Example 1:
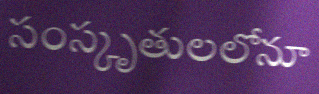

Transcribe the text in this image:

సంస్కృతులలోనూ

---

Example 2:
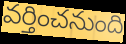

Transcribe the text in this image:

వర్తించనుంది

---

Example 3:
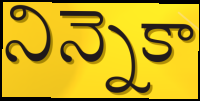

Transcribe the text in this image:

నిన్నెకా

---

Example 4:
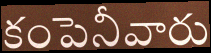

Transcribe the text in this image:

కంపెనీవారు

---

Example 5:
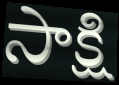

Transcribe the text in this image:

సాక్షి